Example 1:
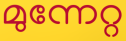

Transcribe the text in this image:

മുന്നേറ്റ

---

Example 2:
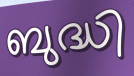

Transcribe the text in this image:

ബുദ്ധി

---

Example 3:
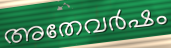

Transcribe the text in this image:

അതേവർഷം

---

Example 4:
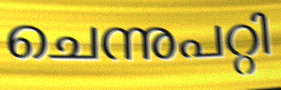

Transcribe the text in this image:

ചെന്നുപറ്റി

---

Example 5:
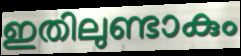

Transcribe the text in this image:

ഇതിലുണ്ടാകും